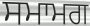
ਸਮਾਮਗ